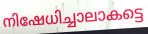
നിഷേധിച്ചാലാകട്ടെ